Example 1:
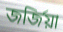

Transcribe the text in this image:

জৰ্জিয়া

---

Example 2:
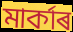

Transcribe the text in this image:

মাৰ্কাৰ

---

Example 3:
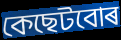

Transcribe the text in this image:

কেছেটবোৰ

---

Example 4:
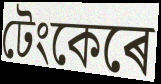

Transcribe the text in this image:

টেংকেৰে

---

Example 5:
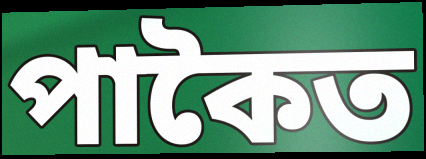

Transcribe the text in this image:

পাকৈত